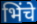
भिंचे